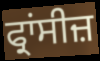
ਫ੍ਰਾਂਸੀਜ਼